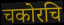
चकोरचि